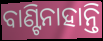
ବାଣ୍ଟିନାହାନ୍ତି